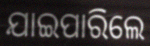
ଯାଇପାରିଲେ